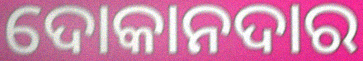
ଦୋକାନଦାର